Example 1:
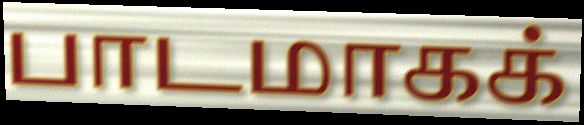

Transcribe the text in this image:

பாடமாகக்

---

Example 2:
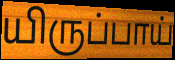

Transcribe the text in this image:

யிருப்பாய்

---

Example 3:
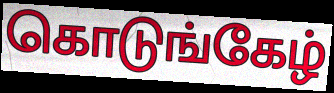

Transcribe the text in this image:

கொடுங்கேழ்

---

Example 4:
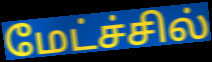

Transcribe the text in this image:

மேட்ச்சில்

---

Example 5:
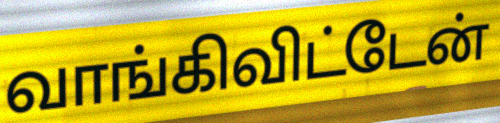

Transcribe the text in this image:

வாங்கிவிட்டேன்